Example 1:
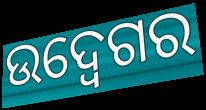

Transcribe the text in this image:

ଉଦ୍ବେଗର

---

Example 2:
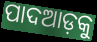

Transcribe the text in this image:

ପାଦଆଡ଼କୁ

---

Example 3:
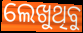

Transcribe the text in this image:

ଲେଖୁଥିବୁ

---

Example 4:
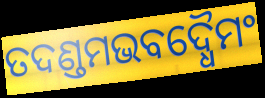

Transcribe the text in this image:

ତଦଣ୍ଡମଭବଦ୍ଧୈମଂ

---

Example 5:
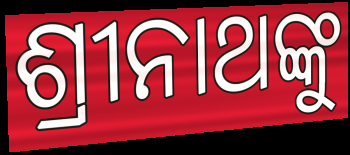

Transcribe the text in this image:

ଶ୍ରୀନାଥଙ୍କୁ